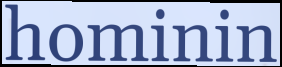
hominin